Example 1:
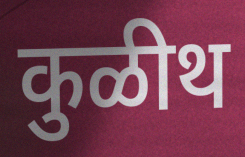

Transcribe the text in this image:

कुळीथ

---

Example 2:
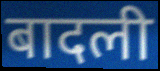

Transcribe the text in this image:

बादली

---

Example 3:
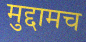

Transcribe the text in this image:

मुद्दामच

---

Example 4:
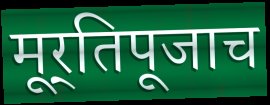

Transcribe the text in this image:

मूर्तिपूजाच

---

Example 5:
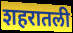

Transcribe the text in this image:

शहरातली